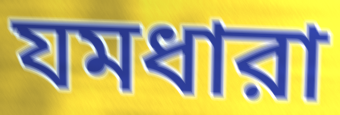
যমধারা